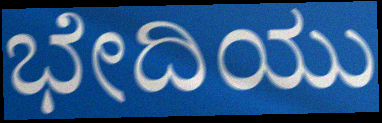
ಭೇದಿಯು